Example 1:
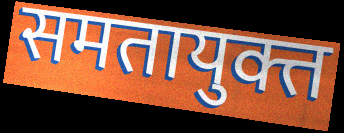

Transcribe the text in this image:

समतायुक्त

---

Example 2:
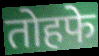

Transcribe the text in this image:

तोहफे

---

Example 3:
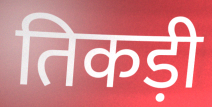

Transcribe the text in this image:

तिकड़ी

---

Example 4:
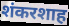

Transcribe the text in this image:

शंकरशाह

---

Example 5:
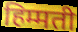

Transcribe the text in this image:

हिम्मती